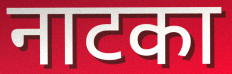
नाटका